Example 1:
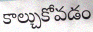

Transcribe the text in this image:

కాల్చుకోవడం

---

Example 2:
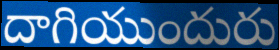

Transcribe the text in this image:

దాగియుందురు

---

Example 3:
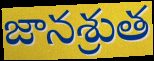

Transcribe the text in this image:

జానశ్రుత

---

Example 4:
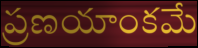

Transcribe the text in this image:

ప్రణయాంకమే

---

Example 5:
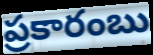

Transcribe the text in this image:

ప్రకారంబు